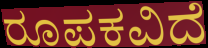
ರೂಪಕವಿದೆ